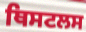
ਥਿਸਟਲਸ